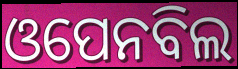
ଓପେନବିଲ